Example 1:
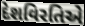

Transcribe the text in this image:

દેશવિરતિએ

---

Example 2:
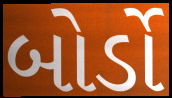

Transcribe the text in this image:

બોર્ડો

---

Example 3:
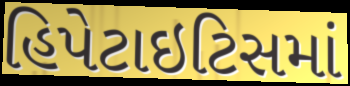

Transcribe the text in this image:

હિપેટાઇટિસમાં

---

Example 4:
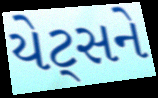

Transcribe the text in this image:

યેટ્સને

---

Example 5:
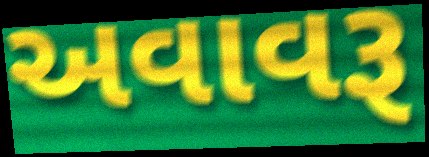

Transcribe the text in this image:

અવાવરૂ